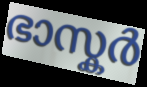
ഭാസ്കർ